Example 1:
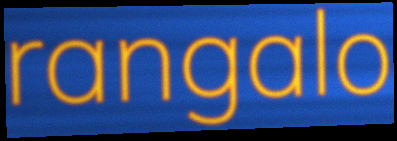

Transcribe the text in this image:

rangalo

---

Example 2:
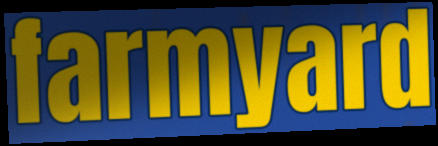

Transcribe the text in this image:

farmyard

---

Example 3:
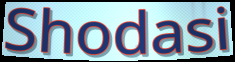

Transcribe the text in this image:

Shodasi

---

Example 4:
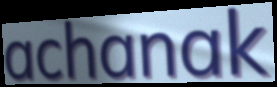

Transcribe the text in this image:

achanak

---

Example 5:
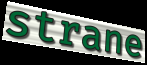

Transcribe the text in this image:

strane